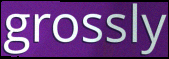
grossly